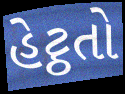
હેટ્ઠતો